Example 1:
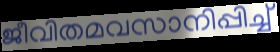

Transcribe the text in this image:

ജീവിതമവസാനിപ്പിച്ച്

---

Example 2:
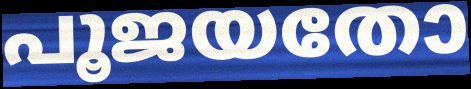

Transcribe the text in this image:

പൂജയതോ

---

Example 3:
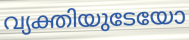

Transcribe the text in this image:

വ്യക്തിയുടേയോ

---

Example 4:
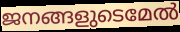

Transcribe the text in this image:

ജനങ്ങളുടെമേൽ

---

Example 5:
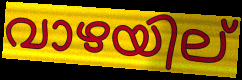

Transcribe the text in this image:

വാഴയില്